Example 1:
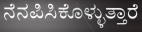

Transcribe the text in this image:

ನೆನಪಿಸಿಕೊಳ್ಳುತ್ತಾರೆ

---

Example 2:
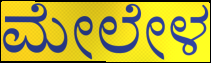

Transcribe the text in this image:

ಮೇಲೇಳ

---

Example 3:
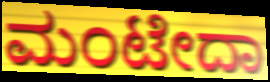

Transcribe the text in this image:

ಮಂಟೇದಾ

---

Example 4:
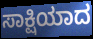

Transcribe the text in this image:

ಸಾಕ್ಷಿಯಾದ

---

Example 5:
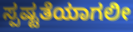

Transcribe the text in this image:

ಸ್ಪಷ್ಟತೆಯಾಗಲೀ